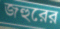
জহুরের